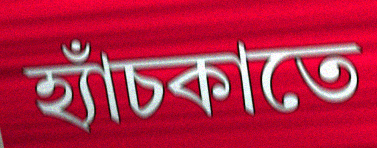
হ্যাঁচকাতে